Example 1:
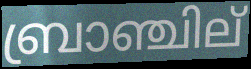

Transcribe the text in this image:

ബ്രാഞ്ചില്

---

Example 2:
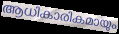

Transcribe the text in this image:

ആധികാരികമായും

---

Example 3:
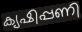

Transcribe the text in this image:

ക്യഷിപ്പണി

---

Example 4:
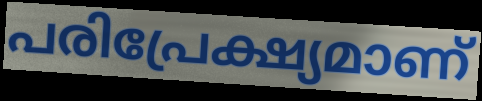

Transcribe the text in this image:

പരിപ്രേക്ഷ്യമാണ്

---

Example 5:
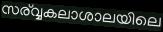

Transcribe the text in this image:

സര്വ്വകലാശാലയിലെ